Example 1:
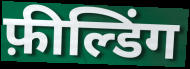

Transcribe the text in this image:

फ़ील्डिंग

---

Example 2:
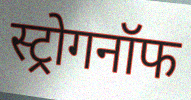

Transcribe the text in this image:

स्ट्रोगनॉफ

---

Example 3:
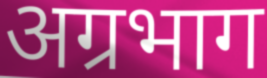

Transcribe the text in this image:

अग्रभाग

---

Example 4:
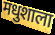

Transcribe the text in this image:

मधुशाला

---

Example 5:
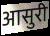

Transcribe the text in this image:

आसुरी